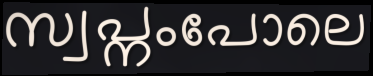
സ്വപ്നംപോലെ